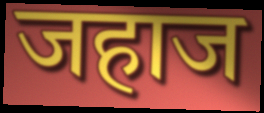
जहाज